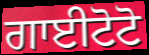
ਗਾਈਟੋਟੋ